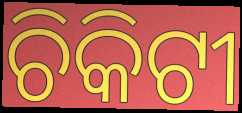
ଚିକିଟୀ